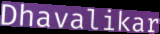
Dhavalikar